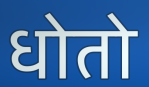
धोतो